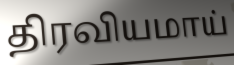
திரவியமாய்